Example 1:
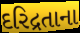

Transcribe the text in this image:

દરિદ્રતાના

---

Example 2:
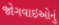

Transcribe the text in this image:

જોગવાઇઓનું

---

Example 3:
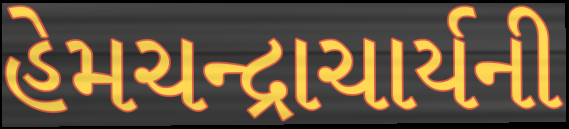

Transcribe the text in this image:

હેમચન્દ્રાચાર્યની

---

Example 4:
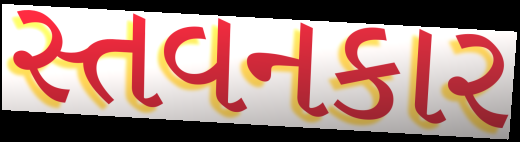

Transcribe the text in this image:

સ્તવનકાર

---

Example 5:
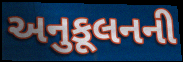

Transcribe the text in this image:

અનુકૂલનની